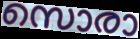
സൊരാ